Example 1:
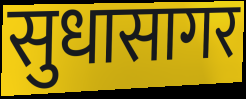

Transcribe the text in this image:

सुधासागर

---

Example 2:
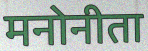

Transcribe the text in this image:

मनोनीता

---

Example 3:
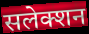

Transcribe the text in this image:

सलेक्शन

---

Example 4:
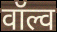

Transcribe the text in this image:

वॉल्व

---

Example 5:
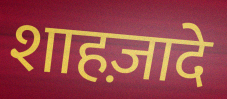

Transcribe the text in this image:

शाहज़ादे